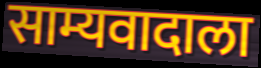
साम्यवादाला